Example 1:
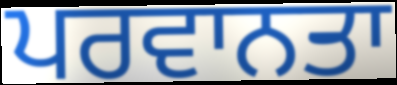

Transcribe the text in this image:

ਪਰਵਾਨਤਾ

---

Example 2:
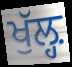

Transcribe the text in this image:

ਖੁੱਲ਼੍ਹ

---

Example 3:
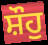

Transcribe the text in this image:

ਸ਼ੌਹੁ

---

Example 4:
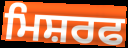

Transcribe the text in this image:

ਮਿਸ਼ਰਫ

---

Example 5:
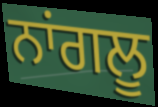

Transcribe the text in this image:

ਨਾਂਗਲੂ